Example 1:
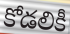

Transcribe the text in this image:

కోడలికీ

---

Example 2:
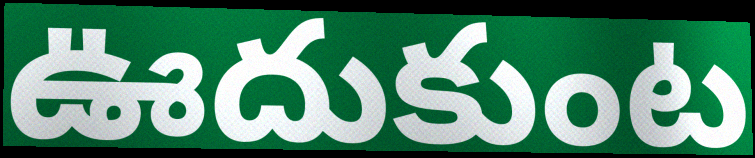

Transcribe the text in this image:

ఊదుకుంట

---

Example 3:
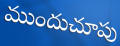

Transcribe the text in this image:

ముందుచూపు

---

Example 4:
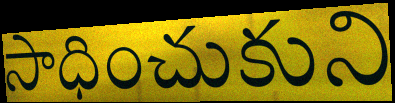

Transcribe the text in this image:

సాధించుకుని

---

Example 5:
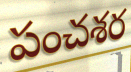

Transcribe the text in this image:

పంచశర